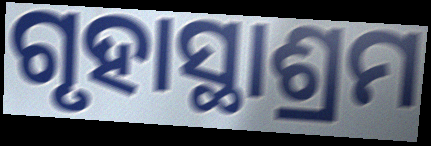
ଗୃହାସ୍ଥାଶ୍ରମ